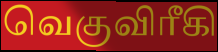
வெகுவிரீகி